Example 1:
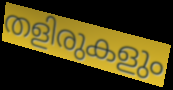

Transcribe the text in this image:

തളിരുകളും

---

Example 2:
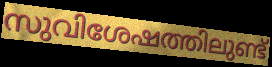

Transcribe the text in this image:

സുവിശേഷത്തിലുണ്ട്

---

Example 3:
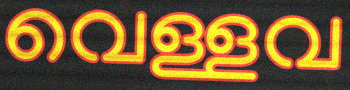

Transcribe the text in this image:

വെള്ളവ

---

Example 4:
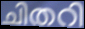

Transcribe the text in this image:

ചിതറി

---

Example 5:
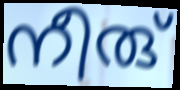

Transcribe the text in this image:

നീരു്